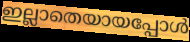
ഇല്ലാതെയായപ്പോൾ